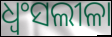
ଧ୍ୱଂସଲୀଳା